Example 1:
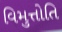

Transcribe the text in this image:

વિમુત્તોતિ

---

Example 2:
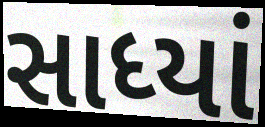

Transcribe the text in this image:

સાધ્યાં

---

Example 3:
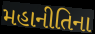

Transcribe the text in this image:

મહાનીતિના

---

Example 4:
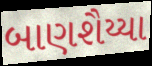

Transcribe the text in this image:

બાણશૈય્યા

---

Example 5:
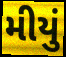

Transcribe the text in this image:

મીયું